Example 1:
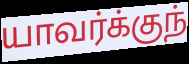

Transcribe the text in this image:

யாவர்க்குந்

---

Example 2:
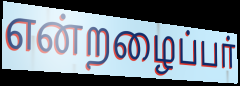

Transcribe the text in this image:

என்றழைப்பர்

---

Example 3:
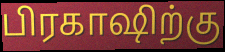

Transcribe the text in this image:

பிரகாஷிற்கு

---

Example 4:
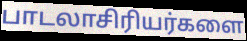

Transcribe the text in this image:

பாடலாசிரியர்களை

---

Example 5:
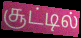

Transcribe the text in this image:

சூட்டில்